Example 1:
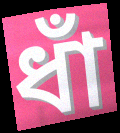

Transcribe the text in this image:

ধাঁ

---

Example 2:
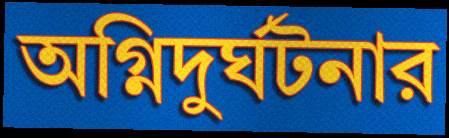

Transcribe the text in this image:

অগ্নিদুর্ঘটনার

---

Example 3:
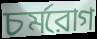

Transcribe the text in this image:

চর্মরোগ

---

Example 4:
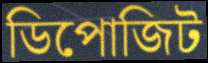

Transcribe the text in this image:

ডিপোজিট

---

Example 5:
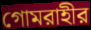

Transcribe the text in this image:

গোমরাহীর